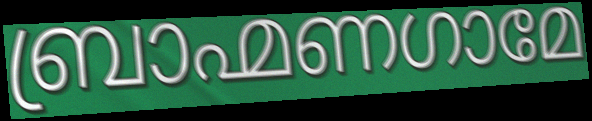
ബ്രാഹ്മണഗാമേ